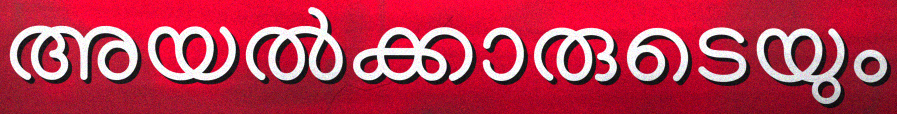
അയൽക്കാരുടെയും